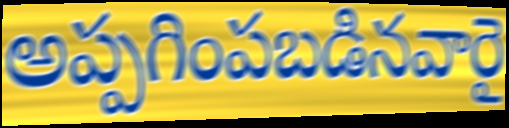
అప్పగింపబడినవారై